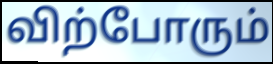
விற்போரும்